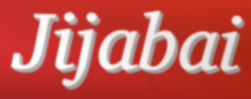
Jijabai